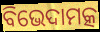
ବିଭେଦାମତ୍କ